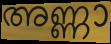
അണ്ണാ